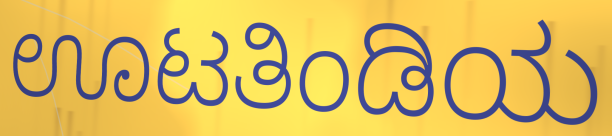
ಊಟತಿಂಡಿಯ